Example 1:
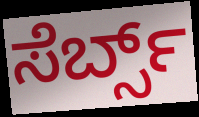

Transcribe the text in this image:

ಸೆರ್ಬ್ಸ್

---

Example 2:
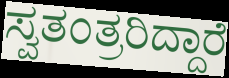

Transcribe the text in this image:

ಸ್ವತಂತ್ರರಿದ್ದಾರೆ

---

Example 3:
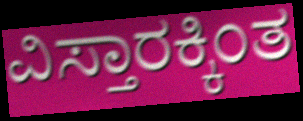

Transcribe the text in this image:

ವಿಸ್ತಾರಕ್ಕಿಂತ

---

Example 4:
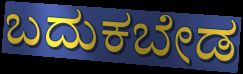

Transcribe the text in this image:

ಬದುಕಬೇಡ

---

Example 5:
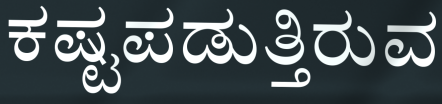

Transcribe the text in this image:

ಕಷ್ಟಪಡುತ್ತಿರುವ